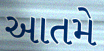
આતમે